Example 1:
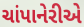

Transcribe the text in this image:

ચાંપાનેરીએ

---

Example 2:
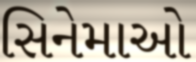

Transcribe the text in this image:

સિનેમાઓ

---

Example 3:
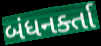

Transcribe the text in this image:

બંધનર્ક્તા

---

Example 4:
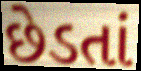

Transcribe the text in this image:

છેડતાં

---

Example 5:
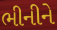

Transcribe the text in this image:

ભીનીને